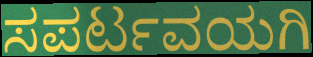
ಸಪರ್ಟವಯಗಿ